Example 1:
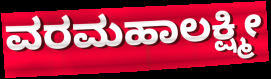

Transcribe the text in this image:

ವರಮಹಾಲಕ್ಷ್ಮೀ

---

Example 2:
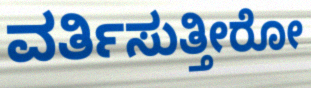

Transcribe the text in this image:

ವರ್ತಿಸುತ್ತೀರೋ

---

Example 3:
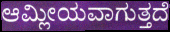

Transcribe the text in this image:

ಆಮ್ಲೀಯವಾಗುತ್ತದೆ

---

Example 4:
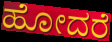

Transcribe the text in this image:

ಹೋದರೆ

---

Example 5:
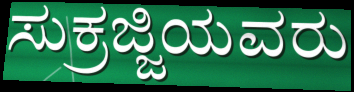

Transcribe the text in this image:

ಸುಕ್ರಜ್ಜಿಯವರು